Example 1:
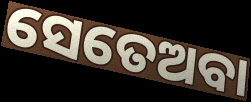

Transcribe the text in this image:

ସେତେଅବା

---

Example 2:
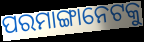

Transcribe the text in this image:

ପରମାଙ୍ଗାନେଟକୁ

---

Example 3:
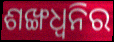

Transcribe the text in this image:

ଶଙ୍ଖଧ୍ବନିର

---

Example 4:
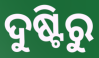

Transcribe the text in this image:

ଦୁଷ୍ଟିରୁ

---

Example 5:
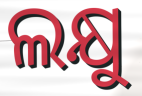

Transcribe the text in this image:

ଲକ୍ଷୁ